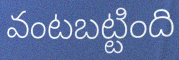
వంటబట్టింది